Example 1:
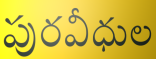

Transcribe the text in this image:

పురవీధుల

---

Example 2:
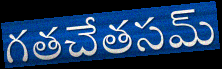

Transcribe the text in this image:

గతచేతసమ్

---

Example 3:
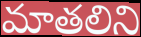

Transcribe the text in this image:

మాతలిని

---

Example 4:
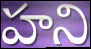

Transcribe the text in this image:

హని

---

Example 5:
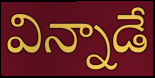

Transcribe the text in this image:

విన్నాడే